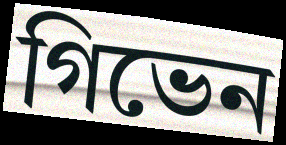
গিভেন